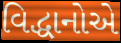
વિદ્ધાનોએ